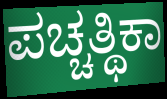
ಪಚ್ಚತ್ಥಿಕಾ